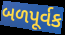
બળપૂર્વક